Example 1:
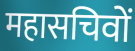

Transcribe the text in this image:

महासचिवों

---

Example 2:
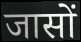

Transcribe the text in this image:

जासों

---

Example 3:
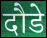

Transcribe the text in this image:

दौडे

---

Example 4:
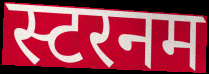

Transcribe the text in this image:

स्टरनम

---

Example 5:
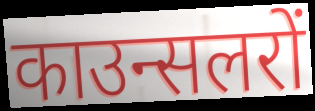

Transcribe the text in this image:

काउन्सलरों